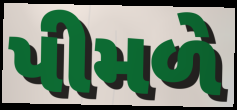
પીમળે